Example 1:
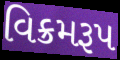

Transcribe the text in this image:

વિક્રમરૂપ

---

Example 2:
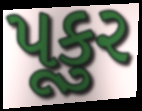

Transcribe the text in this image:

પૂકુર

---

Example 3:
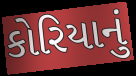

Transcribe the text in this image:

કોરિયાનું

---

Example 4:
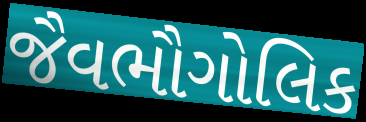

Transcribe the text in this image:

જૈવભૌગોલિક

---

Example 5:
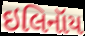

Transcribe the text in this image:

ઇલિનૉય